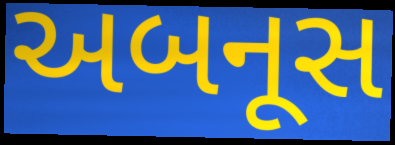
અબનૂસ